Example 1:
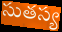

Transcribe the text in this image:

సుతస్య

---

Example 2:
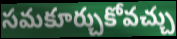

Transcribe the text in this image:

సమకూర్చుకోవచ్చు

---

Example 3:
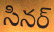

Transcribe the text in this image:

సినర్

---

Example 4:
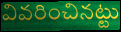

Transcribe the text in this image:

వివరించినట్టు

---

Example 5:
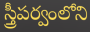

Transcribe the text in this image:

స్త్రీపర్వంలోని